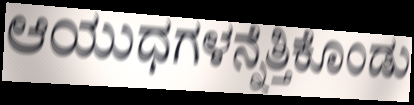
ಆಯುಧಗಳನ್ನೆತ್ತಿಕೊಂಡು